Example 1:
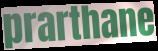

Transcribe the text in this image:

prarthane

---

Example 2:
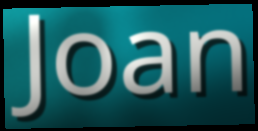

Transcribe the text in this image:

Joan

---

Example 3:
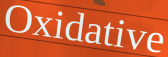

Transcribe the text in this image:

Oxidative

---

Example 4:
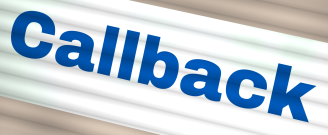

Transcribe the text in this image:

Callback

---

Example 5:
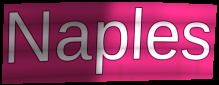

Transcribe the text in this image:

Naples